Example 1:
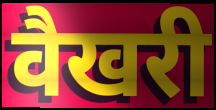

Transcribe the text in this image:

वैखरी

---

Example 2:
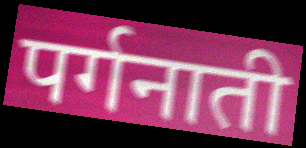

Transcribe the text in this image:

पर्गनाती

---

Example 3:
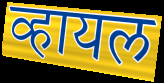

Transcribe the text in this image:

व्हायल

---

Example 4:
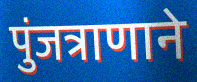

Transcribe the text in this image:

पुंजत्राणाने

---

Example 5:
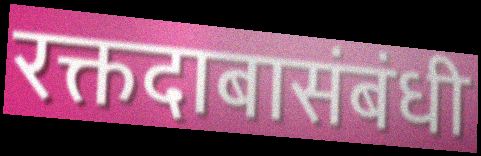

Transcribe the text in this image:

रक्तदाबासंबंधी